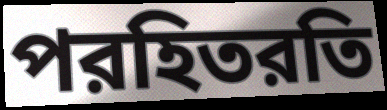
পরহিতরতি